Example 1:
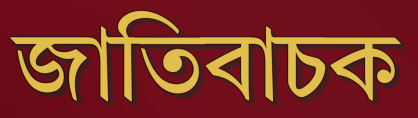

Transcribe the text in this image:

জাতিবাচক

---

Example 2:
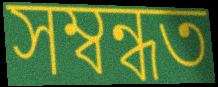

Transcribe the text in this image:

সম্বন্ধত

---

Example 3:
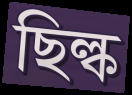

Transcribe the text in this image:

ছিল্ক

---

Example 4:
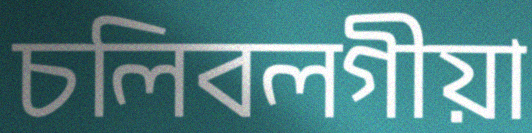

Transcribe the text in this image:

চলিবলগীয়া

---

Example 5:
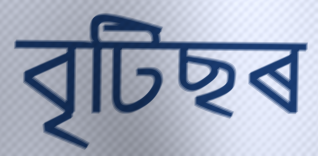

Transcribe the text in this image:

বৃটিছৰ